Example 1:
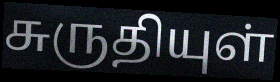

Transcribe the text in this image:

சுருதியுள்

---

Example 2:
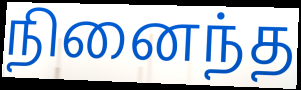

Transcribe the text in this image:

நினைந்த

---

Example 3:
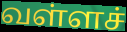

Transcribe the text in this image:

வள்ளச்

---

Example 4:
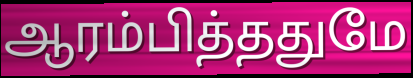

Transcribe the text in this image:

ஆரம்பித்ததுமே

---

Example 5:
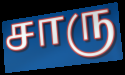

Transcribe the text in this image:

சாரு